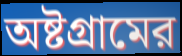
অষ্টগ্রামের